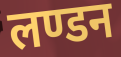
लण्डन